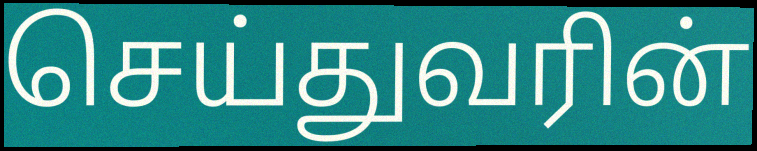
செய்துவரின்